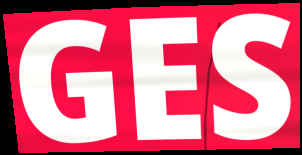
GES